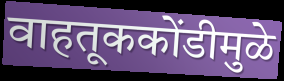
वाहतूककोंडीमुळे